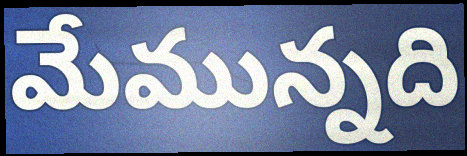
మేమున్నది